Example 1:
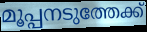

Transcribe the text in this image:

മൂപ്പനടുത്തേക്ക്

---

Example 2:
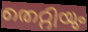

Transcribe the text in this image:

തെറ്റിയും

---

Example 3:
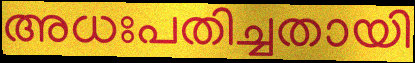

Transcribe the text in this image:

അധഃപതിച്ചതായി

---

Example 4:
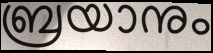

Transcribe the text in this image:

ബ്രയാനും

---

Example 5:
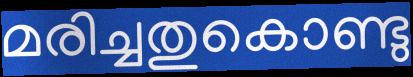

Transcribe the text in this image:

മരിച്ചതുകൊണ്ടു